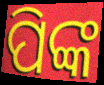
ପିଙ୍କ